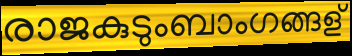
രാജകുടുംബാംഗങ്ങള്